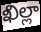
ఖిల్లా